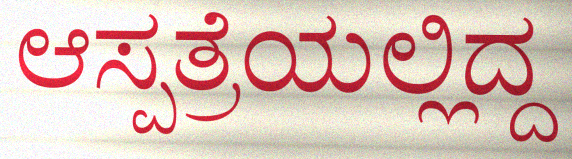
ಆಸ್ಪತ್ರೆಯಲ್ಲಿದ್ದ